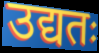
उद्यतः